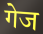
गेज